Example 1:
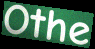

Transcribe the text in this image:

Othe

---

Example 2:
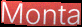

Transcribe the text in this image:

Monta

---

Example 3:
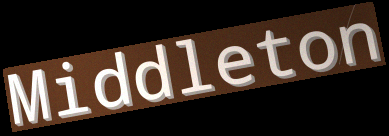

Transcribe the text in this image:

Middleton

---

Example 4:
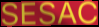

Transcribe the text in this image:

SESAC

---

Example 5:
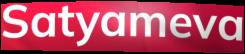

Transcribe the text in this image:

Satyameva